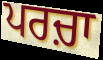
ਪਰਚ਼ਾ